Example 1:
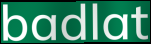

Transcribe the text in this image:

badlat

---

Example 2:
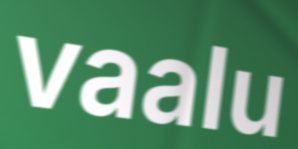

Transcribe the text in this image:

vaalu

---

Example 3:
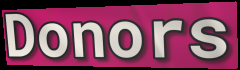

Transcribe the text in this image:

Donors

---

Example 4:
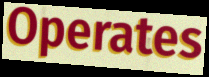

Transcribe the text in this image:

Operates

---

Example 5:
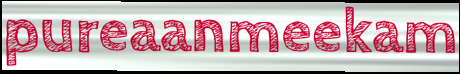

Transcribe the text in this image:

pureaanmeekam